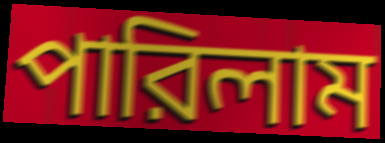
পারিলাম